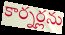
కార్నర్లను